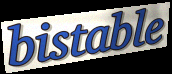
bistable